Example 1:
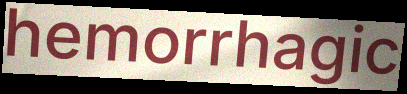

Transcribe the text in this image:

hemorrhagic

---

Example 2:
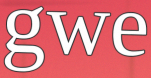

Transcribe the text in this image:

gwe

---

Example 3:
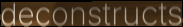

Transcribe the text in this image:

deconstructs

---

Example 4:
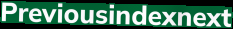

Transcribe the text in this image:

Previousindexnext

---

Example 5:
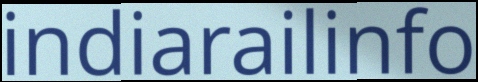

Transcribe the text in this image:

indiarailinfo